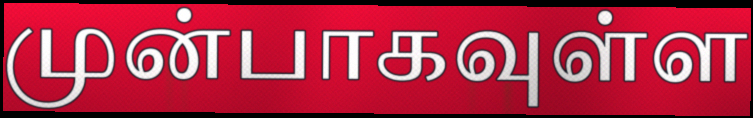
முன்பாகவுள்ள